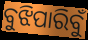
ବୁଝିପାରିବୁଁ